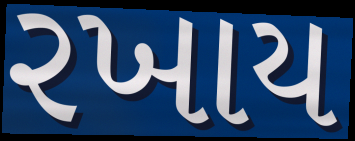
રખાય